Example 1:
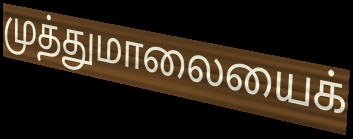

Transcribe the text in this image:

முத்துமாலையைக்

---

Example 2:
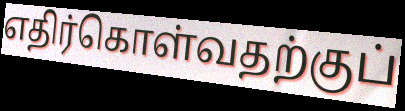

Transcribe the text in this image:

எதிர்கொள்வதற்குப்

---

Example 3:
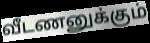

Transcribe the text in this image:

வீடணனுக்கும்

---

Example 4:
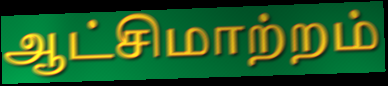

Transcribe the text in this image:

ஆட்சிமாற்றம்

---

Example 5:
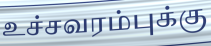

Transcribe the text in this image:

உச்சவரம்புக்கு